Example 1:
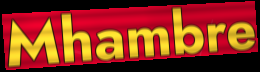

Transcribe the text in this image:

Mhambre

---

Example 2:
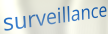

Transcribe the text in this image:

surveillance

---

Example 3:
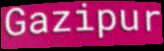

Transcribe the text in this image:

Gazipur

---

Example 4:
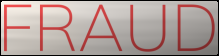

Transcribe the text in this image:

FRAUD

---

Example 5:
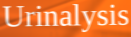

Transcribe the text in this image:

Urinalysis